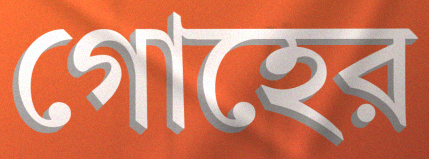
গোহের